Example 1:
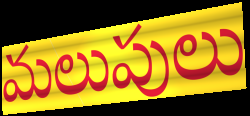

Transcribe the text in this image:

మలుపులు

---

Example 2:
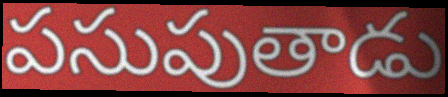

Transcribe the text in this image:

పసుపుతాడు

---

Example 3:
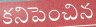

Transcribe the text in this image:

కనిపెంచిన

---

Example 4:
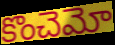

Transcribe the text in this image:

కొంచెమో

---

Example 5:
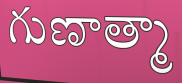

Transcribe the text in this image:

గుణాత్మా